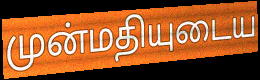
முன்மதியுடைய